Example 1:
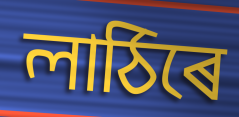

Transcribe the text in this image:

লাঠিৰে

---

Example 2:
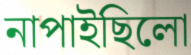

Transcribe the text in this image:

নাপাইছিলো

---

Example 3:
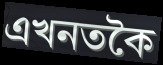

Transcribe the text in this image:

এখনতকৈ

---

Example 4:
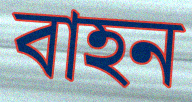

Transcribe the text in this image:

বাহন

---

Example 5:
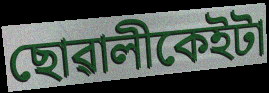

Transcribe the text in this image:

ছোৱালীকেইটা